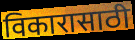
विकारासाठी